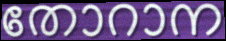
തോറാന